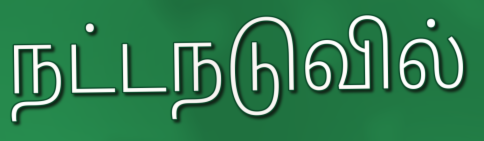
நட்டநடுவில்